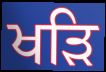
ਖੜਿ